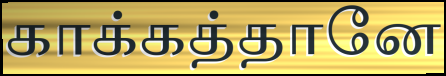
காக்கத்தானே